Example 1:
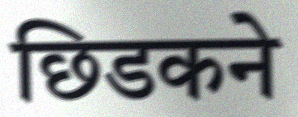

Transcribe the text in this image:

छिडकने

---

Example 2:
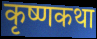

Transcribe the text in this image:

कृष्णकथा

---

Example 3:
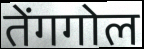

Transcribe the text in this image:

तेंगगोल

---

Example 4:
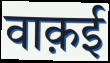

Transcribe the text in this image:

वाक़ई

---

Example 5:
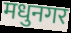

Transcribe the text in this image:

मधुनगर